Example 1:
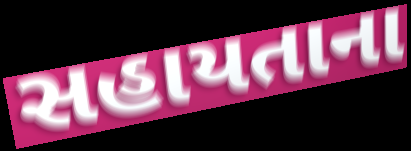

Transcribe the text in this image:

સહાયતાના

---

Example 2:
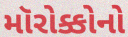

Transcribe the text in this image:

મૉરોક્કોનો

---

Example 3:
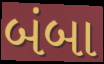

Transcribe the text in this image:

બંબા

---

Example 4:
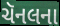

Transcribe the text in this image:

ચૅનલના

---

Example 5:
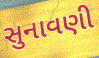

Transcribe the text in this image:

સુનાવણી